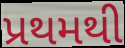
પ્રથમથી